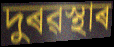
দুৰৱস্থাৰ